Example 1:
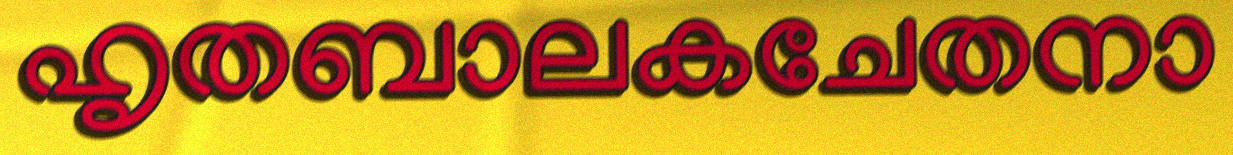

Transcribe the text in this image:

ഹൃതബാലകചേതനാ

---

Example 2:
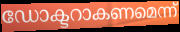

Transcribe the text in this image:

ഡോക്ടറാകണമെന്ന്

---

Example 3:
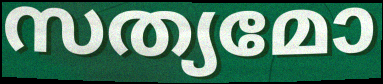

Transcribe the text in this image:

സത്യമോ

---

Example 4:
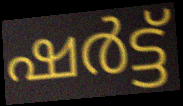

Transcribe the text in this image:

ഷർട്ട്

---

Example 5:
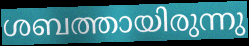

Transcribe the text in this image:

ശബത്തായിരുന്നു